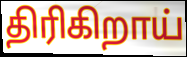
திரிகிறாய்